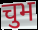
चुभ